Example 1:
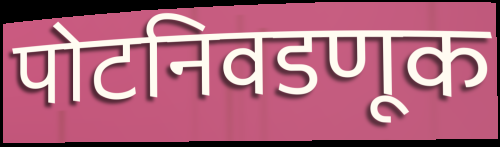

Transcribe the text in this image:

पोटनिवडणूक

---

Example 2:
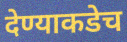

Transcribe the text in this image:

देण्याकडेच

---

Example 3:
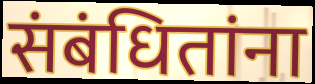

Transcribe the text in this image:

संबंधितांना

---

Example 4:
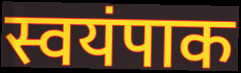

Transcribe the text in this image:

स्वयंपाक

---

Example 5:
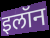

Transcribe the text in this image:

इलॉन